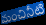
మంచినీటి